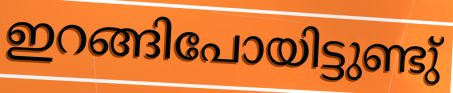
ഇറങ്ങിപോയിട്ടുണ്ടു്